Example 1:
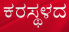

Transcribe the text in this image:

ಕರಸ್ಥಳದ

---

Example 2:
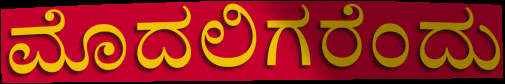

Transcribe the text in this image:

ಮೊದಲಿಗರೆಂದು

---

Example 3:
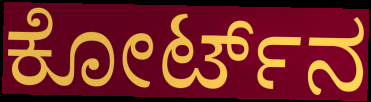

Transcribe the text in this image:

ಕೋರ್ಟ್‍ನ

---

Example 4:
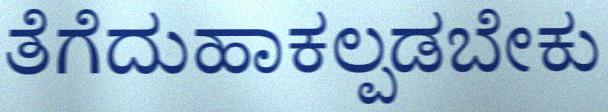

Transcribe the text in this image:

ತೆಗೆದುಹಾಕಲ್ಪಡಬೇಕು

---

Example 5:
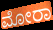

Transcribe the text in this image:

ಮೋರಾ